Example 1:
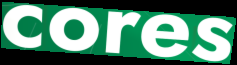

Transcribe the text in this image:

cores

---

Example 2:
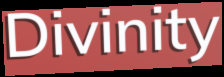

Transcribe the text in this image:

Divinity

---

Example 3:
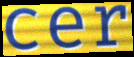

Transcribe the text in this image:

cer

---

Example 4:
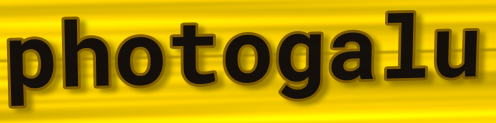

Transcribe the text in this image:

photogalu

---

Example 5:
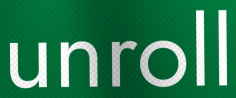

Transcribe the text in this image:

unroll